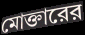
মোক্তারের